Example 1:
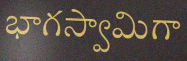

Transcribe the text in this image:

భాగస్వామిగా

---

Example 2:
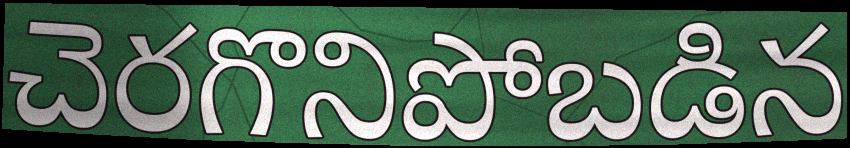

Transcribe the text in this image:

చెరగొనిపోబడిన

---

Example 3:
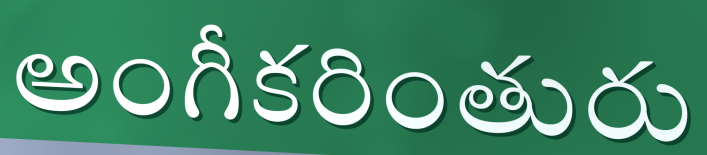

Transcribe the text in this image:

అంగీకరింతురు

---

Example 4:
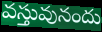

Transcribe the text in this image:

వస్తువునందు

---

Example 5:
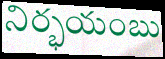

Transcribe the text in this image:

నిర్భయంబు